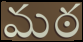
మఠ